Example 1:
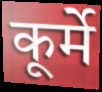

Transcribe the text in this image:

कूर्मे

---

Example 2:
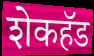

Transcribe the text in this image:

शेकहॅड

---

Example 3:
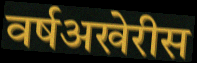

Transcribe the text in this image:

वर्षअखेरीस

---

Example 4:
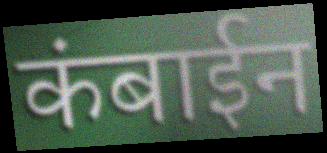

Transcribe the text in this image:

कंबाईन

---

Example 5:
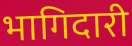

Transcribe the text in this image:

भागिदारी